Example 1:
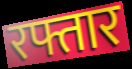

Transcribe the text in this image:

रफ्‍तार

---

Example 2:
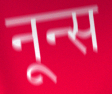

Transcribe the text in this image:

नून्स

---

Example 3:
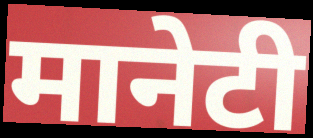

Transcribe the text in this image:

मानेटी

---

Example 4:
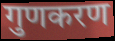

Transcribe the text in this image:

गुणकरण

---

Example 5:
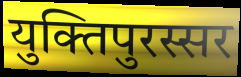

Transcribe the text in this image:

युक्तिपुरस्सर